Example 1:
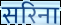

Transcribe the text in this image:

सरिना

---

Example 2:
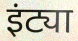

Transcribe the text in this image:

इंट्या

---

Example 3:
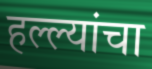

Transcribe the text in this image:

हल्ल्यांचा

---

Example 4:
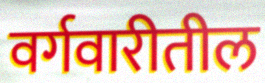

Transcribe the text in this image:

वर्गवारीतील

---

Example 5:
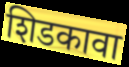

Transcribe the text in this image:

शिडकावा